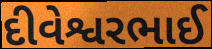
દીવેશ્વરભાઈ